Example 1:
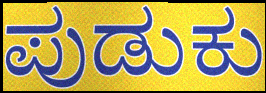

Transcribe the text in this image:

ಪುಡುಕು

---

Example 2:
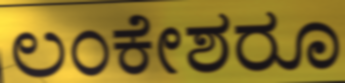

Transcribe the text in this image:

ಲಂಕೇಶರೂ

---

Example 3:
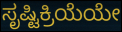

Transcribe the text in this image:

ಸೃಷ್ಟಿಕ್ರಿಯೆಯೇ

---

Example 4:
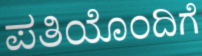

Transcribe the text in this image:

ಪತಿಯೊಂದಿಗೆ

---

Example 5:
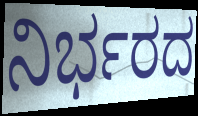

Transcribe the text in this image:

ನಿರ್ಭರದ